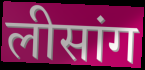
लीसांग